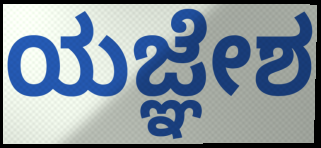
ಯಜ್ಞೇಶ